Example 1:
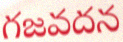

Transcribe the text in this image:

గజవదన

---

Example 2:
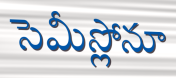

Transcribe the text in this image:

సెమీస్లోనూ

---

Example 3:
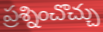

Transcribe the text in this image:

ప్రశ్నించొచ్చు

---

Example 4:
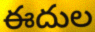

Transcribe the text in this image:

ఈదుల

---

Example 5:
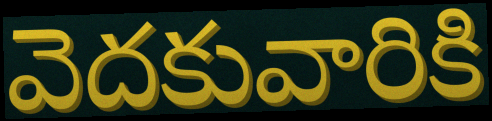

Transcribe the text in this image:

వెదకువారికి